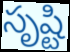
సృష్టి